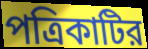
পত্রিকাটির